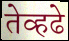
तेव्हढे